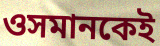
ওসমানকেই